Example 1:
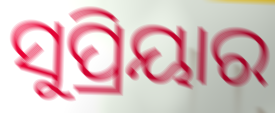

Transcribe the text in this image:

ସୁପ୍ରିୟାର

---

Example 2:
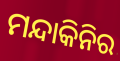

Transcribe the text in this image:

ମନ୍ଦାକିନିର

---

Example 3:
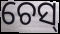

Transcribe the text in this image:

ଚେସ୍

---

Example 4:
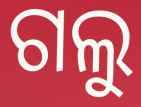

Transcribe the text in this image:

ଗଲୁ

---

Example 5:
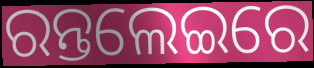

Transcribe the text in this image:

ରନ୍ତଲେଇରେ